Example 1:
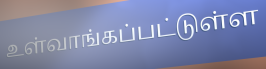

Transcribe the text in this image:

உள்வாங்கப்பட்டுள்ள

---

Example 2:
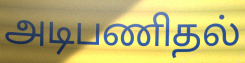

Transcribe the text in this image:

அடிபணிதல்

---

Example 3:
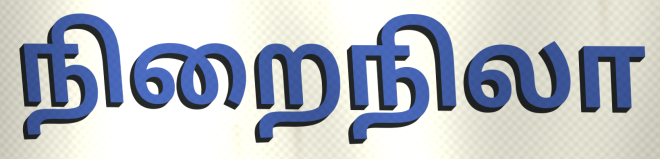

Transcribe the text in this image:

நிறைநிலா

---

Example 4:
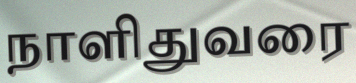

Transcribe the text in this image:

நாளிதுவரை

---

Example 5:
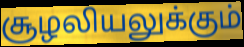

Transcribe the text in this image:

சூழலியலுக்கும்